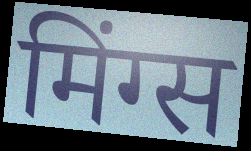
मिंग्स